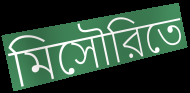
মিসৌরিতে